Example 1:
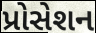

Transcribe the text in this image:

પ્રોસેશન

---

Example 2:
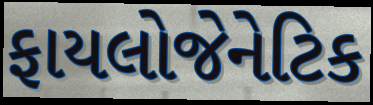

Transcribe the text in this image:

ફાયલોજેનેટિક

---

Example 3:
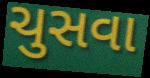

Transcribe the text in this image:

ચુસવા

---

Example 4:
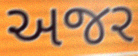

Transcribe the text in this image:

અજર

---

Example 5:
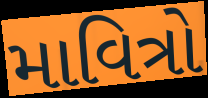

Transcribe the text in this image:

માવિત્રો